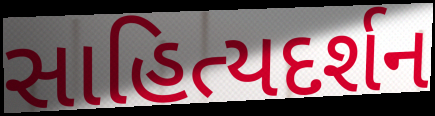
સાહિત્યદર્શન